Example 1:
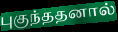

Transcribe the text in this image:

புகுந்ததனால்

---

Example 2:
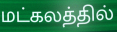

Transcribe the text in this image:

மட்கலத்தில்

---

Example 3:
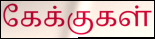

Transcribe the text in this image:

கேக்குகள்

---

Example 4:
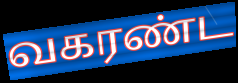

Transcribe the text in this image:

வகரண்ட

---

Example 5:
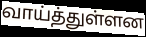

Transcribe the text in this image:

வாய்த்துள்ளன